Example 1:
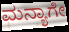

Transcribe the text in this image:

ಮನ್ಯಾಗೇ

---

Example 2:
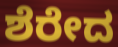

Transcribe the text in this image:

ಶೆರೇದ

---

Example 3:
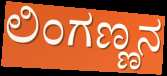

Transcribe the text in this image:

ಲಿಂಗಣ್ಣನ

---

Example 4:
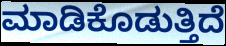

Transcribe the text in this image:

ಮಾಡಿಕೊಡುತ್ತಿದೆ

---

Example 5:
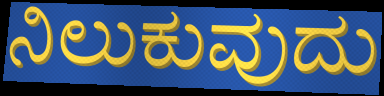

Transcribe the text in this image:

ನಿಲುಕುವುದು